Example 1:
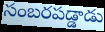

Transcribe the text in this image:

సంబరపడ్డాడు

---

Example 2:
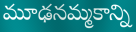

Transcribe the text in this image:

మూఢనమ్మకాన్ని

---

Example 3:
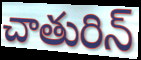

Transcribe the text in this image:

చాతురిన్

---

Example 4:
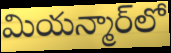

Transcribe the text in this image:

మియన్మార్‌లో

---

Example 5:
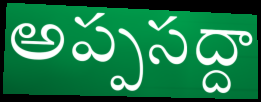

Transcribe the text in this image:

అప్పసద్దా